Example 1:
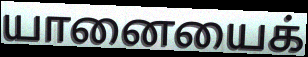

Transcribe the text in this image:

யானையைக்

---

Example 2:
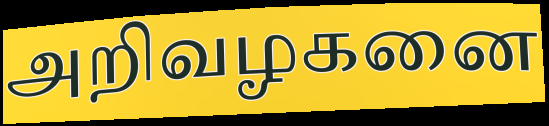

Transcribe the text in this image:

அறிவழகனை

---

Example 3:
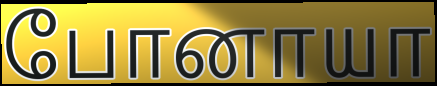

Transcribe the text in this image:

போனாயா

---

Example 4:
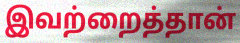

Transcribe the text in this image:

இவற்றைத்தான்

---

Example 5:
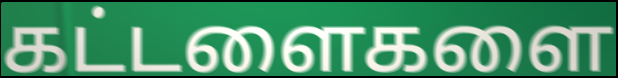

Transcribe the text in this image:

கட்டளைகளை